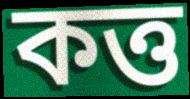
কত্ত